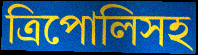
ত্রিপোলিসহ